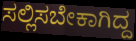
ಸಲ್ಲಿಸಬೇಕಾಗಿದ್ದ